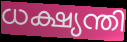
ധക്ഷ്യന്തി